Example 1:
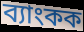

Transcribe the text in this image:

ব্যাংকক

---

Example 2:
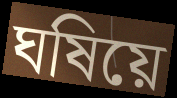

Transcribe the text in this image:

ঘষিয়ে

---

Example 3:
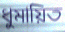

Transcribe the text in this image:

ধুমায়িত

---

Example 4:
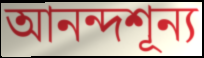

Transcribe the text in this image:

আনন্দশূন্য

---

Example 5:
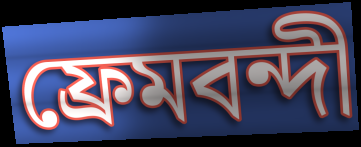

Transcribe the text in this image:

ফ্রেমবন্দী